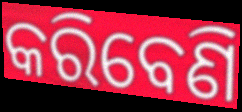
କରିବେଣି